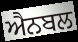
ਐਨਬਲ